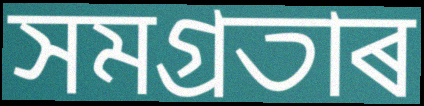
সমগ্ৰতাৰ